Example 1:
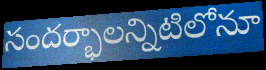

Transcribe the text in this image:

సందర్భాలన్నిటిలోనూ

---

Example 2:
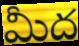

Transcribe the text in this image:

మీద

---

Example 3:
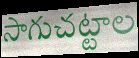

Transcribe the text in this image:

సాగుచట్టాల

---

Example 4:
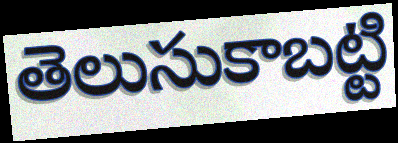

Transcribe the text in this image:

తెలుసుకాబట్టి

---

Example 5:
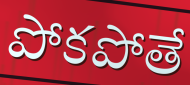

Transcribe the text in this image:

పోకపోతే